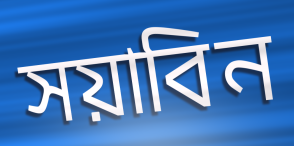
সয়াবিন